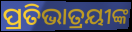
ପ୍ରତିଭାତ୍ରୟୀଙ୍କ